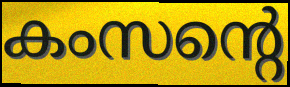
കംസന്റെ